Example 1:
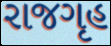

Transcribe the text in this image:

રાજગૃહ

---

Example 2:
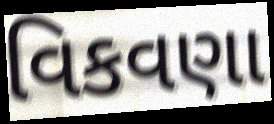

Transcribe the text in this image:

વિકવણા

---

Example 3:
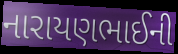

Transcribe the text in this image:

નારાયણભાઈની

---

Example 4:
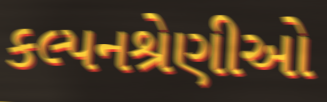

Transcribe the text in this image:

કલ્પનશ્રેણીઓ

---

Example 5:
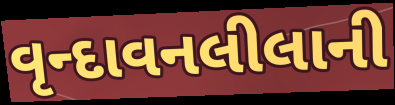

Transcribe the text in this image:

વૃન્દાવનલીલાની